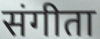
संगीता